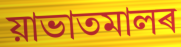
য়াভাতমালৰ